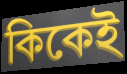
কিকেই